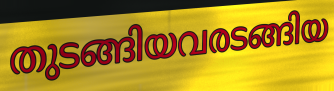
തുടങ്ങിയവരടങ്ങിയ